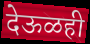
देऊळही